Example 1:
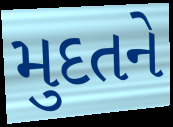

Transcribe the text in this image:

મુદતને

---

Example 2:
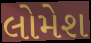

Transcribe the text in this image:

લોમેશ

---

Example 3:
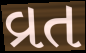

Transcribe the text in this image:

વ્રત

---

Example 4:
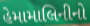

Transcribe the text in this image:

હેમામાલિનીનો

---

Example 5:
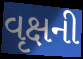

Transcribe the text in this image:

વૃક્ષની